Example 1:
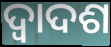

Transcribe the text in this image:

ଦ୍ଵାଦଶ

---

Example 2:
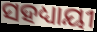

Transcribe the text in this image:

ସହଧ୍ୟାୟୀ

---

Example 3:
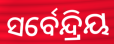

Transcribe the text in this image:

ସର୍ବେନ୍ଦ୍ରିୟ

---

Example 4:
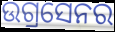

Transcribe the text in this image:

ଉଗ୍ରସେନର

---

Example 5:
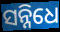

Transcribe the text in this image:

ସନ୍ନିଧେ